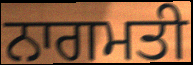
ਨਾਗਮਤੀ